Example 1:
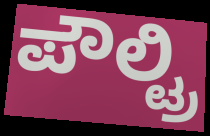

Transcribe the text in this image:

ಪೌಲ್ಟ್ರಿ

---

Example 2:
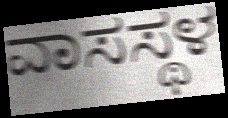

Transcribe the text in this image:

ವಾಸಸ್ಥಳ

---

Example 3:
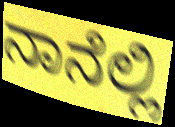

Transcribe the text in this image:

ನಾನೆಲ್ಲಿ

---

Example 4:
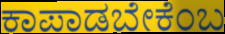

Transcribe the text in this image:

ಕಾಪಾಡಬೇಕೆಂಬ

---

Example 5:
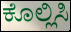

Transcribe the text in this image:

ಕೊಲ್ಲಿಸಿ